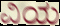
ವಿಯ